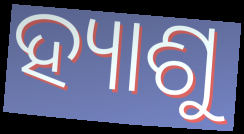
ହ୍ୟାଶୁ